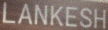
LANKESH